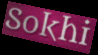
Sokhi